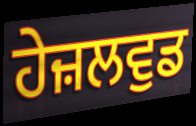
ਹੇਜ਼ਲਵੁਡ